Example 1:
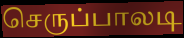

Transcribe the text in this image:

செருப்பாலடி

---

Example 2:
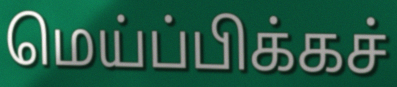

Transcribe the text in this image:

மெய்ப்பிக்கச்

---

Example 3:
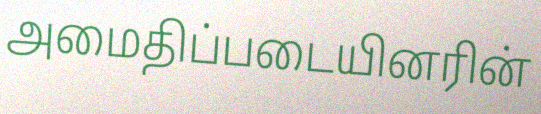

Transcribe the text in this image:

அமைதிப்படையினரின்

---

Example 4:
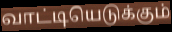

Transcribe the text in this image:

வாட்டியெடுக்கும்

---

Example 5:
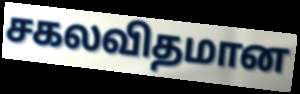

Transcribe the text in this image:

சகலவிதமான